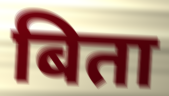
बिता